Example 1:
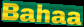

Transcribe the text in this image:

Bahaa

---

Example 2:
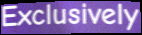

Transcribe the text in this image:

Exclusively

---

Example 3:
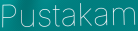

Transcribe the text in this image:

Pustakam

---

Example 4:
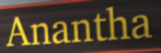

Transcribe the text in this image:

Anantha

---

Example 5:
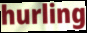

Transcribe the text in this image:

hurling